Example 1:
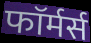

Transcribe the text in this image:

फॉर्मर्स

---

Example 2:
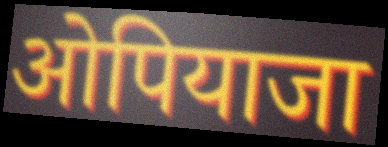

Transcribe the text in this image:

ओपियाजा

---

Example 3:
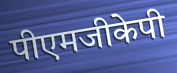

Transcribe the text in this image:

पीएमजीकेपी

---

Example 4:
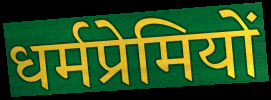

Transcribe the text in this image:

धर्मप्रेमियों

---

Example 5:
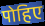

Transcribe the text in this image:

पोहिए